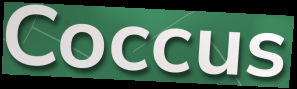
Coccus